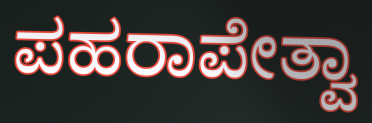
ಪಹರಾಪೇತ್ವಾ